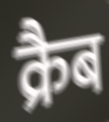
क्रैब